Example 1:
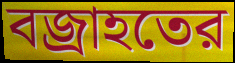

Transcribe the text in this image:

বজ্রাহতের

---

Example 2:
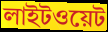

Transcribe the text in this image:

লাইটওয়েট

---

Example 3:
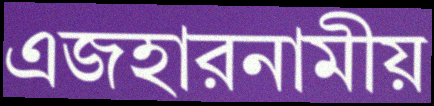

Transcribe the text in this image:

এজহারনামীয়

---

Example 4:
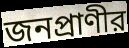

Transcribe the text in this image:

জনপ্রাণীর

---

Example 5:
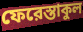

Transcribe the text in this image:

ফেরেস্তাকুল